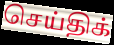
செய்திக்